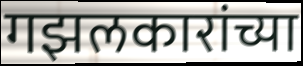
गझलकारांच्या